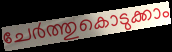
ചേർത്തുകൊടുക്കാം